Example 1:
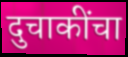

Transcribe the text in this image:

दुचाकींचा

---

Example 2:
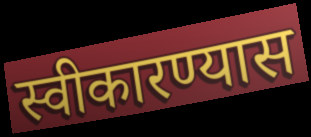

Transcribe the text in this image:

स्वीकारण्यास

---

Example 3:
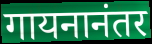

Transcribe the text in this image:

गायनानंतर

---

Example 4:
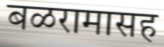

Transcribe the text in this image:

बळरामासह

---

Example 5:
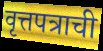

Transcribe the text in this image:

वृत्तपत्राची